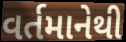
વર્તમાનેથી